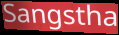
Sangstha